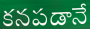
కనపడానే